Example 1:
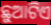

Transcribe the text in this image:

ଛୁଆଟିଏ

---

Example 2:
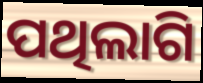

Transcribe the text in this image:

ପଥିଲାଗି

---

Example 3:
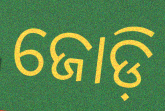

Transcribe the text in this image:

ଜୋଡ଼ି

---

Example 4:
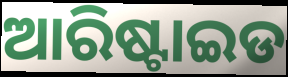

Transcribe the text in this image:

ଆରିଷ୍ଟାଇଡ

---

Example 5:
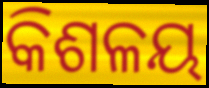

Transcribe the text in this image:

କିଶଳୟ